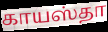
காயஸ்தா